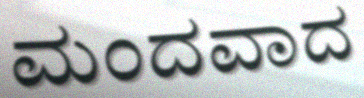
ಮಂದವಾದ